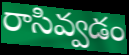
రాసివ్వడం